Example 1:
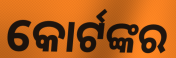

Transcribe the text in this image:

କୋର୍ଟଙ୍କର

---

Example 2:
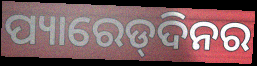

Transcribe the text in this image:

ପ୍ୟାରେଡ୍‌ଦିନର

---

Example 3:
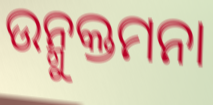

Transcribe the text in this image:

ଉନ୍ମୁକ୍ତମନା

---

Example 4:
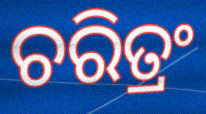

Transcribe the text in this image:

ଚରିତ୍ରଂ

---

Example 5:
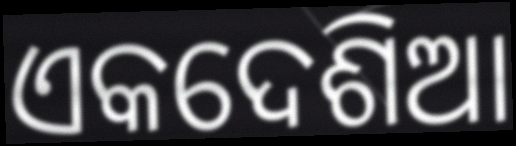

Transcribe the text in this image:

ଏକଦେଶିଆ